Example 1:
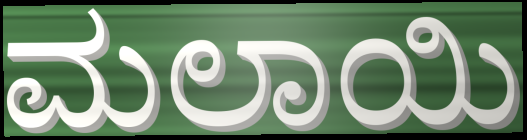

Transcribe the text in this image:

ಮಲಾಯಿ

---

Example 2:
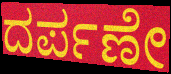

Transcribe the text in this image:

ದರ್ಪಣೇ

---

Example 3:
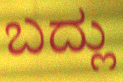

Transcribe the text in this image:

ಬದ್ಲು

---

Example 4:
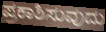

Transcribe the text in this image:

ಪ್ರಕಾಶಿಸುವುದು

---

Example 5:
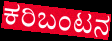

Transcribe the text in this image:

ಕರಿಬಂಟನ